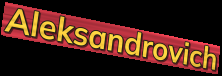
Aleksandrovich